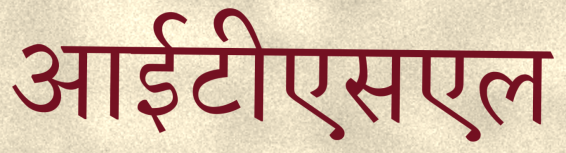
आईटीएसएल